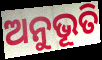
ଅନୁଭୂତି